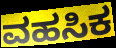
ವಹಸಿಕ